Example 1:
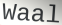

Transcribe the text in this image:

Waal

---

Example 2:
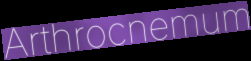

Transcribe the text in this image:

Arthrocnemum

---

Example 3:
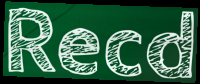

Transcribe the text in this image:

Recd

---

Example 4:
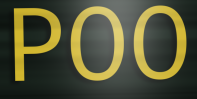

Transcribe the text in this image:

POO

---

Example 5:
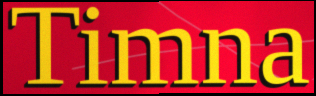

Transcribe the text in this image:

Timna